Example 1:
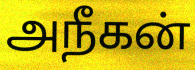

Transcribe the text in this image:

அநீகன்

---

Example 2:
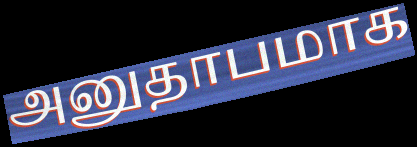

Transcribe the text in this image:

அனுதாபமாக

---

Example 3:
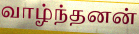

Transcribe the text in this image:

வாழ்ந்தனன்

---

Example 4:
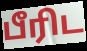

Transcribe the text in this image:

பீரிட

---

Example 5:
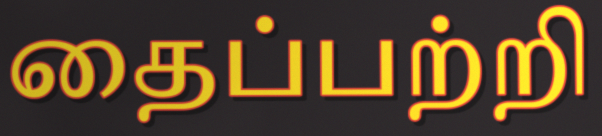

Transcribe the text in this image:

தைப்பற்றி